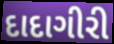
દાદાગીરી